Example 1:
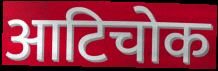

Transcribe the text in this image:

आटिचोक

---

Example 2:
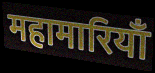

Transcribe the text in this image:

महामारियाँ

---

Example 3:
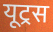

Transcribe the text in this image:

यूट्रस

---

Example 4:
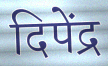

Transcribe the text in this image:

दिपेंद्र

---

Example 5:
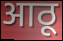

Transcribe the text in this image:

आठू